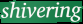
shivering